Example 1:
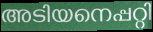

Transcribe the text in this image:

അടിയനെപ്പറ്റി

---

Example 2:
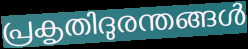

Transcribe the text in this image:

പ്രകൃതിദുരന്തങ്ങൾ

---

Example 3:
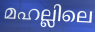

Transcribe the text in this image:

മഹല്ലിലെ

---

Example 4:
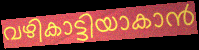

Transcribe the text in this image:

വഴികാട്ടിയാകാൻ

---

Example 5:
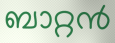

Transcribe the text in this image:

ബാറ്റൻ